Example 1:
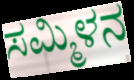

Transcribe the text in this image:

ಸಮ್ಮಿಳನ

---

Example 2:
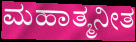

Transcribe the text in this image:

ಮಹಾತ್ಮನೀತ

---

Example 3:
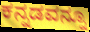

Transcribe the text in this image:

ಕನ್ನಡವನ್ನೂ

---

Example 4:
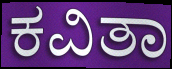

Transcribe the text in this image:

ಕವಿತಾ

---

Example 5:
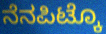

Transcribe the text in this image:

ನೆನಪಿಟ್ಕೊ